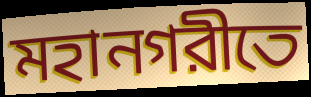
মহানগরীতে